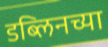
डब्लिनच्या